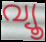
വ്യൂ